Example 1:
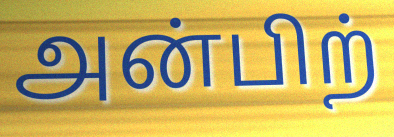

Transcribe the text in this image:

அன்பிற்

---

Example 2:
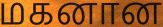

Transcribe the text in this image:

மகனான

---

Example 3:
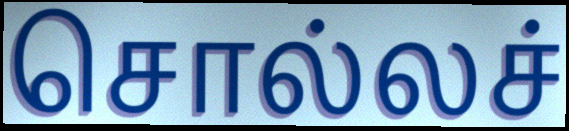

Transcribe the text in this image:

சொல்லச்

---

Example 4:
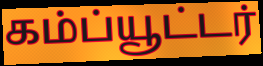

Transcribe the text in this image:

கம்ப்யூட்டர்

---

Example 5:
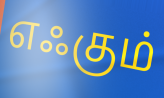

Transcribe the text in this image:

எஃகும்